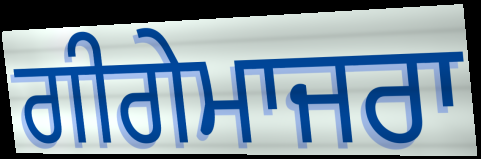
ਗੀਗੇਮਾਜਰਾ